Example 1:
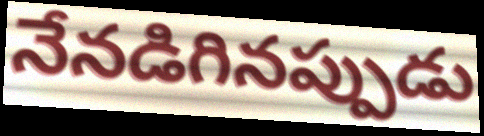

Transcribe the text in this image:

నేనడిగినప్పుడు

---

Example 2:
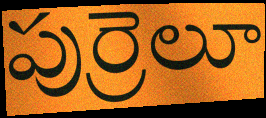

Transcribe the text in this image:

పుర్రెలూ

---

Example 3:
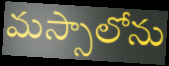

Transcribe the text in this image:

మస్సాలోను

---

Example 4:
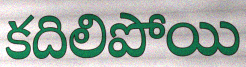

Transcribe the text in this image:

కదిలిపోయి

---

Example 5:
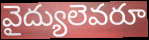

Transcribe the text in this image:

వైద్యులెవరూ